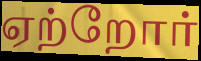
ஏற்றோர்